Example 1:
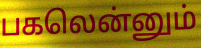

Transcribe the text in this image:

பகலென்னும்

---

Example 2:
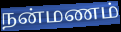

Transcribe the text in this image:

நன்மணம்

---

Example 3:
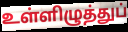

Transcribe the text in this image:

உள்ளிழுத்துப்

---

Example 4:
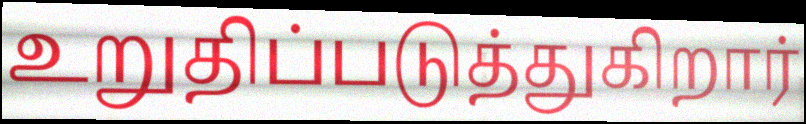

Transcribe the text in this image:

உறுதிப்படுத்துகிறார்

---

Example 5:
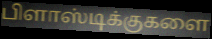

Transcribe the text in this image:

பிளாஸ்டிக்குகளை